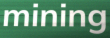
mining